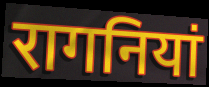
रागनियां